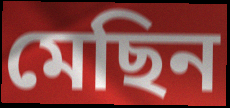
মেছিন